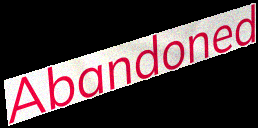
Abandoned